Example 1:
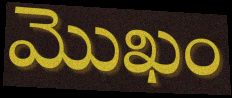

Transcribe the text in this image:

మొఖం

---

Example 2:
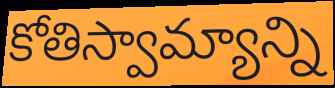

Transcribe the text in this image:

కోతిస్వామ్యాన్ని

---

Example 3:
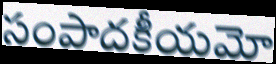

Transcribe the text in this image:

సంపాదకీయమో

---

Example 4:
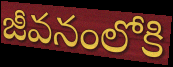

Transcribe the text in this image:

జీవనంలోకి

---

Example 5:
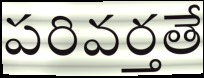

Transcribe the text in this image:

పరివర్తతే